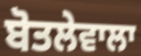
ਬੋਤਲੇਵਾਲਾ